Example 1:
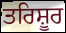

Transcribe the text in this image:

ਤਰਿਸ਼ੂਰ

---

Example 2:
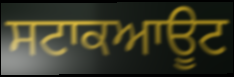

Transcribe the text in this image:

ਸਟਾਕਆਊਟ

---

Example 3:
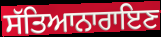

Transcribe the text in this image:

ਸੱਤਿਆਨਾਰਾਇਣ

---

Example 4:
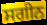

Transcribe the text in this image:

ਸਗੀਨ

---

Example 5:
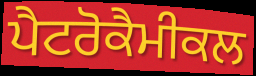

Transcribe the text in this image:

ਪੈਟਰੋਕੈਮੀਕਲ